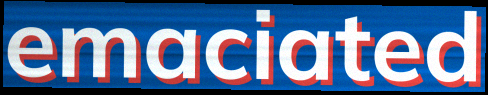
emaciated